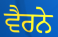
ਵੈਰਨੇ